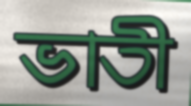
ভাতী